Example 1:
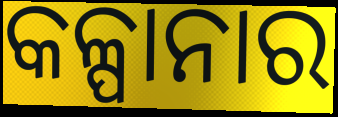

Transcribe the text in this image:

କଳ୍ପାନାର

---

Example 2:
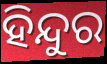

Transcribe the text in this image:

ହିନ୍ଦୁର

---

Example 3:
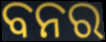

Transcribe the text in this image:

ବନର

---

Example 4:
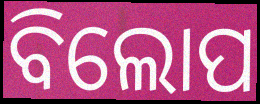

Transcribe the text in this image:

ବିଲୋପ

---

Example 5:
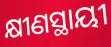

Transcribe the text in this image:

କ୍ଷୀଣସ୍ଥାୟୀ